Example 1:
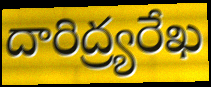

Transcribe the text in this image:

దారిద్ర్యరేఖ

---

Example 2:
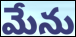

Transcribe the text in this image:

మేను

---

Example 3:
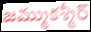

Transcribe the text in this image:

జమ్ముకశ్మీర్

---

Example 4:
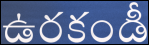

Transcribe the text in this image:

ఉరకండీ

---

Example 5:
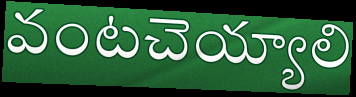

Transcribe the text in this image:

వంటచెయ్యాలి